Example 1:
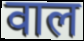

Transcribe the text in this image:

वाल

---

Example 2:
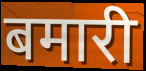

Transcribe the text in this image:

बमारी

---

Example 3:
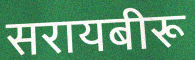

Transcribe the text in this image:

सरायबीरू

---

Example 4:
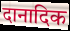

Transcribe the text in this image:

दानादिक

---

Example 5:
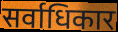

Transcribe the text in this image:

सर्वाधिकार